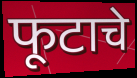
फूटाचे